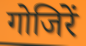
गोजिरें